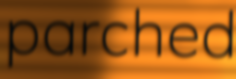
parched